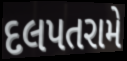
દલપતરામે